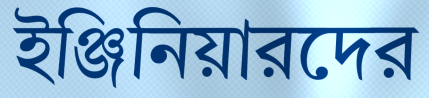
ইঞ্জিনিয়ারদের